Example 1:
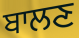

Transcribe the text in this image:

ਬਾਲਣ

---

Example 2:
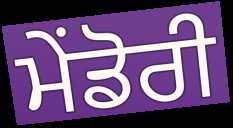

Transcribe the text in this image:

ਮੇਂਡੋਰੀ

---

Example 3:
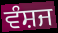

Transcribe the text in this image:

ਵੰਸ਼ਜ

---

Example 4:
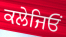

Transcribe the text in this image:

ਕਲੇਜਿਓਂ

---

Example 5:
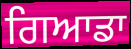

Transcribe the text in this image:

ਗਿਆਡਾ